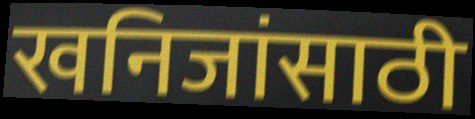
खनिजांसाठी